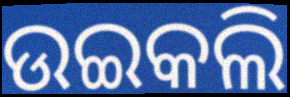
ଉଇକଲି